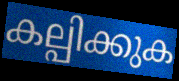
കല്പിക്കുക